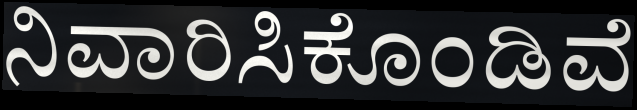
ನಿವಾರಿಸಿಕೊಂಡಿವೆ